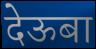
देऊबा